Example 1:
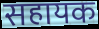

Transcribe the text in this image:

सहायक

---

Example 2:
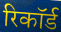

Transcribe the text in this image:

रिकॉर्ड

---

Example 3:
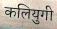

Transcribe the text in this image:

कलियुगी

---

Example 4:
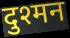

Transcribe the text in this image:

दुश्मन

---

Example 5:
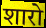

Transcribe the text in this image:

शारो